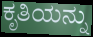
ಕೃತಿಯನ್ನು